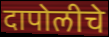
दापोलीचे